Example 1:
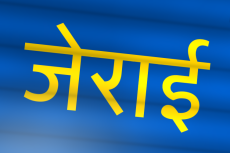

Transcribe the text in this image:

जेराई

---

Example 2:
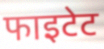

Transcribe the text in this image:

फाइटेट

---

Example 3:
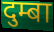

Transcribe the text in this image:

दुम्बा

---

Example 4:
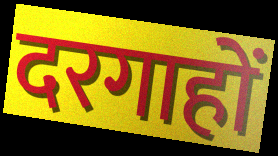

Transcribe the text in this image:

दरगाहों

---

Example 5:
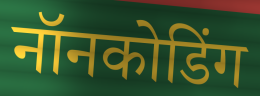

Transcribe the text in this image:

नॉनकोडिंग